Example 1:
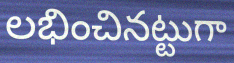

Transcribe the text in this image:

లభించినట్టుగా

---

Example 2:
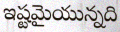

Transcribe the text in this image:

ఇష్టమైయున్నది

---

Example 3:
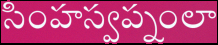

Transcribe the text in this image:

సింహస్వప్నంలా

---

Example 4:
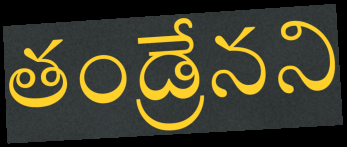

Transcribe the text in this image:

తండ్రేనని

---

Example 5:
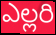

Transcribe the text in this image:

ఎల్లరి